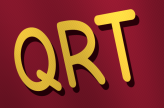
QRT